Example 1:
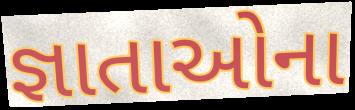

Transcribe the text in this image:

જ્ઞાતાઓના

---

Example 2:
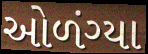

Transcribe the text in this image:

ઓળંગ્યા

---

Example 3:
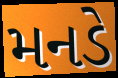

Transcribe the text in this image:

મનડે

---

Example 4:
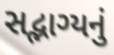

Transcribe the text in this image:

સદ્ભાગ્યનું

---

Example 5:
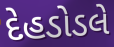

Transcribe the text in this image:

દેહડોડલે